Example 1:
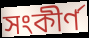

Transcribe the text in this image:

সংকীর্ণ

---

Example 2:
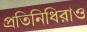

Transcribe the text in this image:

প্রতিনিধিরাও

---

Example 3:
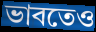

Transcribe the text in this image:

ভাবতেও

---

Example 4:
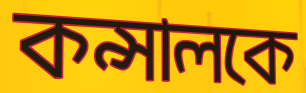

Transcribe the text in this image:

কন্সালকে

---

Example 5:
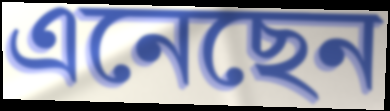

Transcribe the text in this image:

এনেছেন